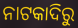
ନାଟକାଦିରୁ